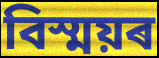
বিস্ময়ৰ